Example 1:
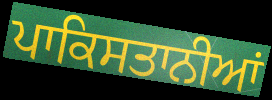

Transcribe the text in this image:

ਪਾਕਿਸਤਾਨੀਆਂ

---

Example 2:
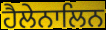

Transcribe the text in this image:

ਹੈਲੇਨਾਲਿਨ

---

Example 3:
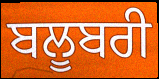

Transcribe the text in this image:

ਬਲੂਬਰੀ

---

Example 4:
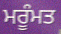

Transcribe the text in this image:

ਮਰੂੰਮਤ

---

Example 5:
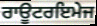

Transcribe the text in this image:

ਰਾਊਟਰਇਮੇਜ